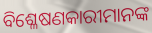
ବିଶ୍ଳେଷଣକାରୀମାନଙ୍କ